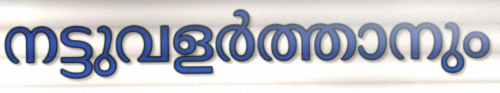
നട്ടുവളർത്താനും